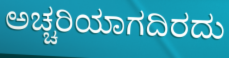
ಅಚ್ಚರಿಯಾಗದಿರದು